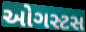
ઓગસ્ટસ